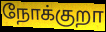
நோக்குறா